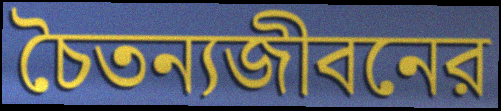
চৈতন্যজীবনের